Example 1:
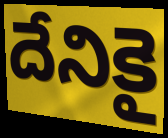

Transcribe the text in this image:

దేనికై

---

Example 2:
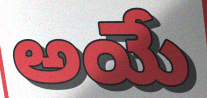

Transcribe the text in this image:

అయే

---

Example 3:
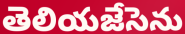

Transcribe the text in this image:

తెలియజేసెను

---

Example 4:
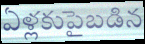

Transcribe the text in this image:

ఏళ్లకుపైబడిన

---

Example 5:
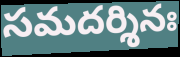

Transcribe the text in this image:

సమదర్శినః